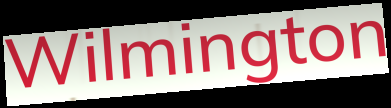
Wilmington